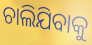
ଚାଲିଯିବାକୁ